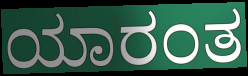
ಯಾರಂತ